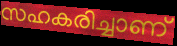
സഹകരിച്ചാണ്